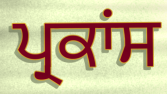
ਪ੍ਰਕਾਂਸ